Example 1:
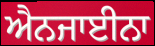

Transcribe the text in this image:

ਐਨਜਾਈਨਾ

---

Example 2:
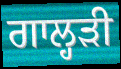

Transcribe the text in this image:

ਗਾਲ੍ਹੜੀ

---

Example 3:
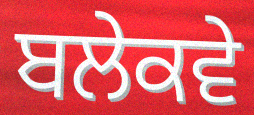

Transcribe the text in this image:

ਬਲੇਕਵੇ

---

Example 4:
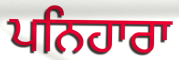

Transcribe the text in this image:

ਪਨਿਹਾਰਾ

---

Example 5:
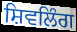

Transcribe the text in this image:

ਸ਼ਿਵਲਿੰਗ